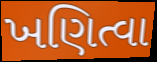
ખણિત્વા